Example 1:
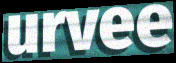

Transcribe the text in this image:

urvee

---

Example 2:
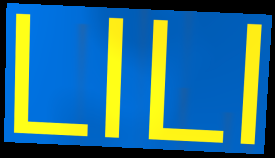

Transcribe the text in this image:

LILI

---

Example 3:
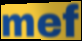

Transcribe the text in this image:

mef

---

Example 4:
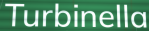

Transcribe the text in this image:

Turbinella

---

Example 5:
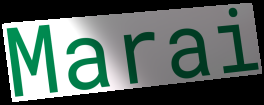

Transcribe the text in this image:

Marai